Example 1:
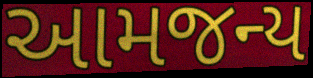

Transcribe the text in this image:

આમજન્ય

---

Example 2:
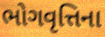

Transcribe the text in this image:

ભોગવૃત્તિના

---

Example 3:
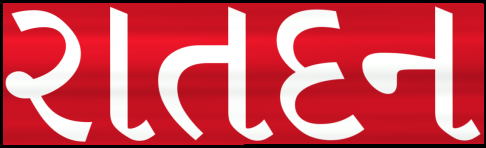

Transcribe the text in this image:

રાતદન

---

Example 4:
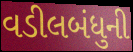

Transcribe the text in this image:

વડીલબંધુની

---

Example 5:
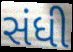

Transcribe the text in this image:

સંધી